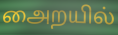
அைறயில்